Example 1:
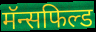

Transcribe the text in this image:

मॅन्सफिल्ड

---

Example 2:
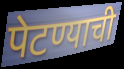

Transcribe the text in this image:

पेटण्याची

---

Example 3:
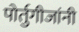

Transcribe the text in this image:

पोर्तुगीजांनी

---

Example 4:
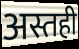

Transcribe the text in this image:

अस्तही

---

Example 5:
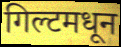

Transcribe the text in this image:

गिल्टमधून